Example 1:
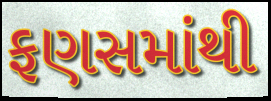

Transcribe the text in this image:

ફણસમાંથી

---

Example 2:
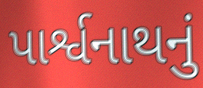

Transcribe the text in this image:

પાર્શ્વનાથનું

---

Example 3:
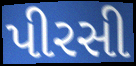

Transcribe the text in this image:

પીરસી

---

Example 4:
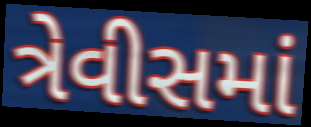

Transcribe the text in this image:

ત્રેવીસમાં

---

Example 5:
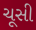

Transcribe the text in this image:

ચૂસી